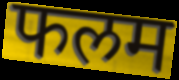
फलम